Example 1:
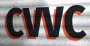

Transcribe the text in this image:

CVVC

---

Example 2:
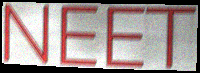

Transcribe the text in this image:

NEET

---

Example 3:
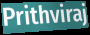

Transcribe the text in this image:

Prithviraj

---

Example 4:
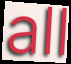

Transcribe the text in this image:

all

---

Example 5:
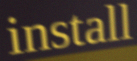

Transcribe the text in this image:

install